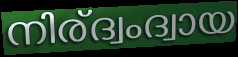
നിര്ദ്വംദ്വായ